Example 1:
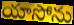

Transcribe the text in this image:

యాసోను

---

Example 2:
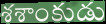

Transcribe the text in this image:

శశాంకుడు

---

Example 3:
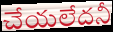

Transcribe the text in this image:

చేయలేదనీ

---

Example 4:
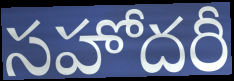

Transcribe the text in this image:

సహోదరీ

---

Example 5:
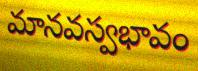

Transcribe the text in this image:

మానవస్వభావం